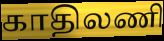
காதிலணி